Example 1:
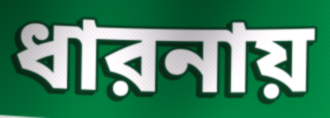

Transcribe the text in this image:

ধারনায়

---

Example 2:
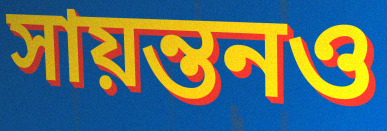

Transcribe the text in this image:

সায়ন্তনও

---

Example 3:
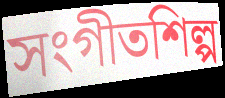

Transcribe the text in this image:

সংগীতশিল্প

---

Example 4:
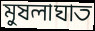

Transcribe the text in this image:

মুষলাঘাত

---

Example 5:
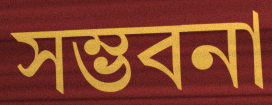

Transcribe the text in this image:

সম্ভবনা